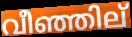
വീഞ്ഞില്